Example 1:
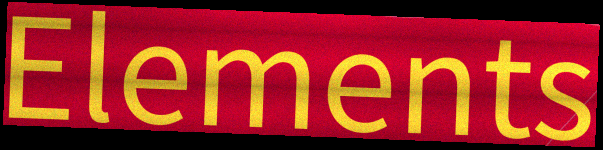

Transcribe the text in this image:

Elements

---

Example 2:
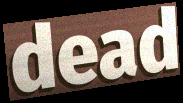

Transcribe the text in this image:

dead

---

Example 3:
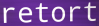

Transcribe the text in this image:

retort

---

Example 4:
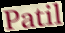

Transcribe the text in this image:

Patil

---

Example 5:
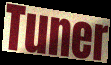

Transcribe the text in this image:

Tuner